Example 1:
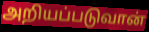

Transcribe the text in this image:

அறியப்படுவான்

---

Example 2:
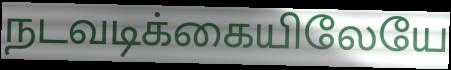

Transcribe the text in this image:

நடவடிக்கையிலேயே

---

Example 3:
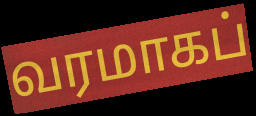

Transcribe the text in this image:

வரமாகப்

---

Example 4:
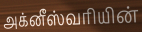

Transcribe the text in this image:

அக்னீஸ்வரியின்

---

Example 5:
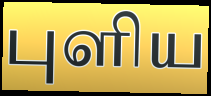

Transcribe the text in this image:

புளிய